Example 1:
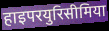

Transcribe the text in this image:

हाइपरयुरिसीमिया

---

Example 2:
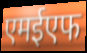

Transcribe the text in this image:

एमईएफ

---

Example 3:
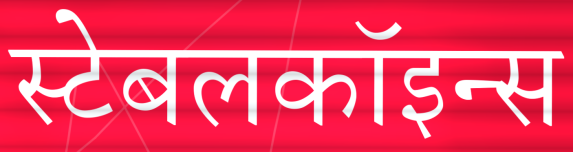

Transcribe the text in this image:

स्टेबलकॉइन्स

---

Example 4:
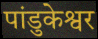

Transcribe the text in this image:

पांडुकेश्वर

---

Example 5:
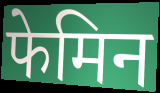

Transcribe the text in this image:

फेमिन